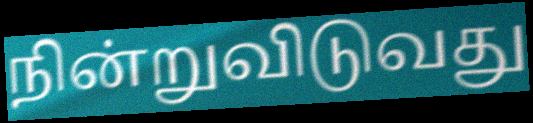
நின்றுவிடுவது